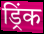
ड्रिंक